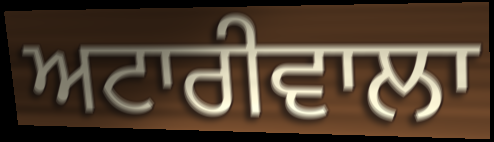
ਅਟਾਰੀਵਾਲਾ